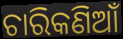
ଚାରିକଣିଆଁ